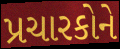
પ્રચારકોને